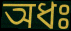
অধঃ